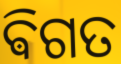
ଵିଗତ